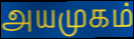
அயமுகம்